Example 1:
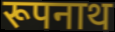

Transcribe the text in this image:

रूपनाथ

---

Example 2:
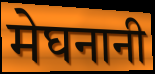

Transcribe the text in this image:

मेघनानी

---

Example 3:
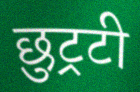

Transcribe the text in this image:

छुट्रटी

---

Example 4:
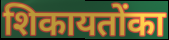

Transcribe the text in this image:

शिकायतोंका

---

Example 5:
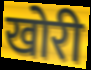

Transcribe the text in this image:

खोरी